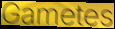
Gametes